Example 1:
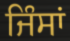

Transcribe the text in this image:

ਜਿੰਸਾਂ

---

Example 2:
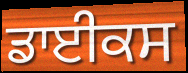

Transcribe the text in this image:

ਡਾਈਕਸ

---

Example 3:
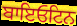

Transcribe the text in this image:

ਬਾਇਓਟਿਨ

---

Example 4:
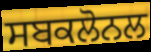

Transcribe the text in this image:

ਸਬਕਲੋਨਲ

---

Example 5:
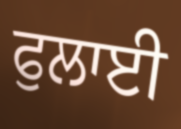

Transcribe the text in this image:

ਫੁਲਾਈ